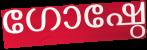
ഗോഷ്ഠേ